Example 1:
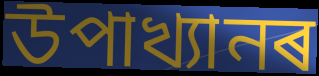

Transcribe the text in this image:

উপাখ্যানৰ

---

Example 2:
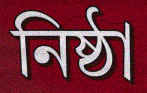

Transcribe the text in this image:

নিষ্ঠা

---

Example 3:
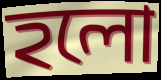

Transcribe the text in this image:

হলো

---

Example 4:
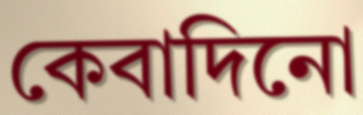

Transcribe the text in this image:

কেবাদিনো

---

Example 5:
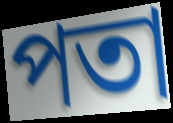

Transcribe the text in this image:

পতা